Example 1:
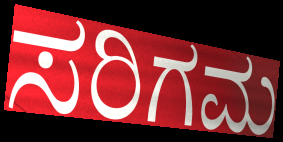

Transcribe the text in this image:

ಸರಿಗಮ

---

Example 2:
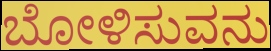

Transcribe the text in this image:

ಬೋಳಿಸುವನು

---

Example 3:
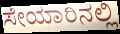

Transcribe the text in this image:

ಸೇಯಾರಿನಲ್ಲಿ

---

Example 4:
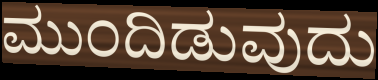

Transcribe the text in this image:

ಮುಂದಿಡುವುದು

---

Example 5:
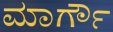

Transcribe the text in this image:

ಮಾರ್ಗೌ